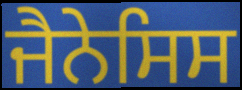
ਜੈਨੇਸਿਸ